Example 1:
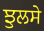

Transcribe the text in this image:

ਝੁਲਸੇ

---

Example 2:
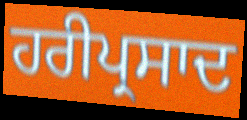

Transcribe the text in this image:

ਹਰੀਪ੍ਰਸਾਦ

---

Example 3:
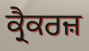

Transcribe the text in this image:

ਕ੍ਰੈਕਰਜ਼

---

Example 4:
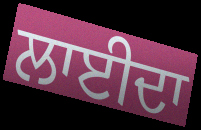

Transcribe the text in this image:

ਲਾਈਦਾ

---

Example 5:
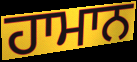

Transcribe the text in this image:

ਹਾਮਾਨ